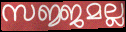
സജ്ജമല്ല